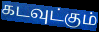
கடவுட்கும்